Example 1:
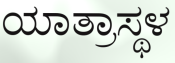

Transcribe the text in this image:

ಯಾತ್ರಾಸ್ಥಳ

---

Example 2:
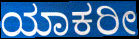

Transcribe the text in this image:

ಯಾಕರೀ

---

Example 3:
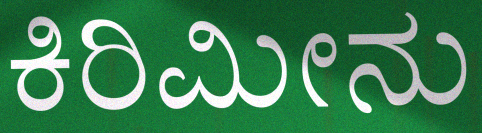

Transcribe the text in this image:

ಕಿರಿಮೀನು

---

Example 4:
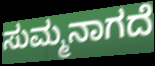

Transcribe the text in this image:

ಸುಮ್ಮನಾಗದೆ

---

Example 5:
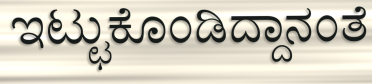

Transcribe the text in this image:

ಇಟ್ಟುಕೊಂಡಿದ್ದಾನಂತೆ